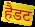
हैडट